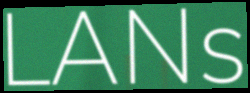
LANs